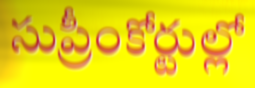
సుప్రీంకోర్టుల్లో